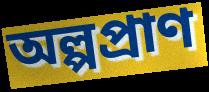
অল্পপ্রাণ